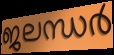
ജലന്ധർ